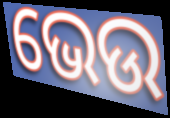
ଭେଉ